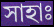
সাহাঃ